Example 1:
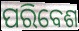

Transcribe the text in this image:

ପରିବେଶ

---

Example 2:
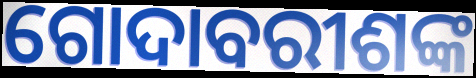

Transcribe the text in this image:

ଗୋଦାବରୀଶଙ୍କ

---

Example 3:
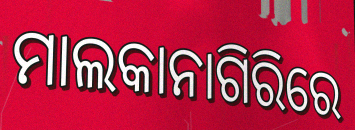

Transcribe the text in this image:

ମାଲକାନାଗିରିରେ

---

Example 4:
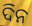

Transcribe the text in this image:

ଦିନ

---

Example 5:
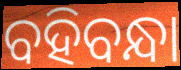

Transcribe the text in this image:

ବହିବନ୍ଧା